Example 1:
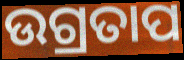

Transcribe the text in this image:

ଉଗ୍ରତାପ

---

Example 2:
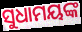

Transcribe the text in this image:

ସୁଧାମୟଙ୍କ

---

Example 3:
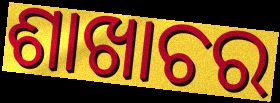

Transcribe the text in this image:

ଶାଖାଚର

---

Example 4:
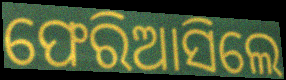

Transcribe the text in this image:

ଫେରିଆସିଲେ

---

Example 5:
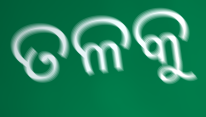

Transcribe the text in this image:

ତଳକୁ